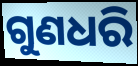
ଗୁଣଧରି